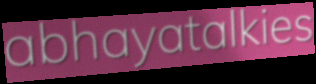
abhayatalkies